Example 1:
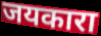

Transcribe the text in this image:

जयकारा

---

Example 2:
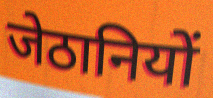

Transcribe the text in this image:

जेठानियों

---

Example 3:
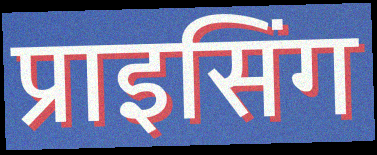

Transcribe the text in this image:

प्राइसिंग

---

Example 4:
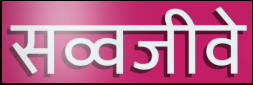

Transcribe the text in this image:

सव्वजीवे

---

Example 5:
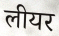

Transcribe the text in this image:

लीयर